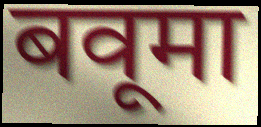
बवूमा